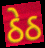
ઠેઠ